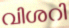
വിശറി